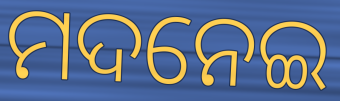
ମଦନେଇ